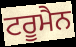
ਟਰੂਮੈਨ